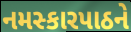
નમસ્કારપાઠને